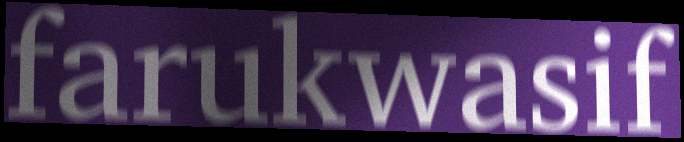
farukwasif